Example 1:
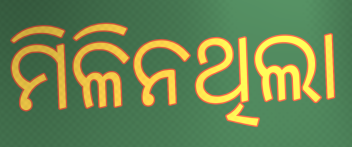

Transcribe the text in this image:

ମିଳିନଥିଲା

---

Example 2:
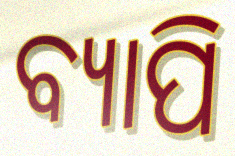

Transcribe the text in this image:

ବ୍ଯାପି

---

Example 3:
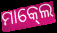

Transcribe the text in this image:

ମାକ୍‍ଲେ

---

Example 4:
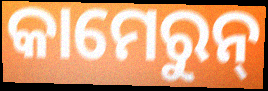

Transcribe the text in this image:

କାମେରୁନ୍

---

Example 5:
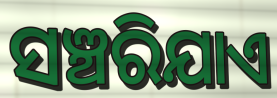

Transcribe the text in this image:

ସଞ୍ଚରିଯାଏ